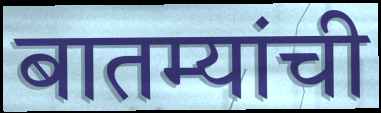
बातम्यांची